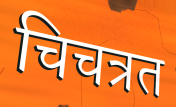
चिचत्रत